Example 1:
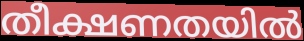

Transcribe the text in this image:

തീക്ഷണതയിൽ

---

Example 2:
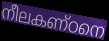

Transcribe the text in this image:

നീലകണ്ഠനെ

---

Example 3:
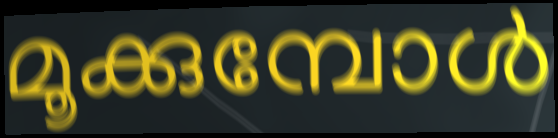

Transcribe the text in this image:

മൂക്കുമ്പോൾ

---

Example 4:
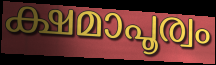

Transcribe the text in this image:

ക്ഷമാപൂര്വം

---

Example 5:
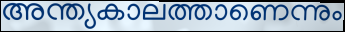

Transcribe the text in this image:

അന്ത്യകാലത്താണെന്നും